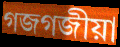
গজগজীয়া